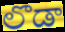
లొడా